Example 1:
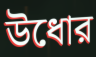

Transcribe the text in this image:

উধোর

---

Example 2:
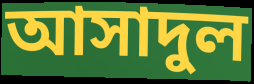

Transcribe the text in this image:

আসাদুল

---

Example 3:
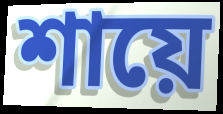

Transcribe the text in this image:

শায়ে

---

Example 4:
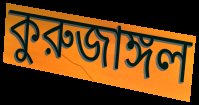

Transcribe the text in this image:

কুরুজাঙ্গল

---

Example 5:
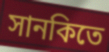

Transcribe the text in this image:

সানকিতে